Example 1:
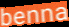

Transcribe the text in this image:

benna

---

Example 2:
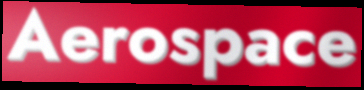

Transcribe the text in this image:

Aerospace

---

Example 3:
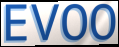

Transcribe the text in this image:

EVOO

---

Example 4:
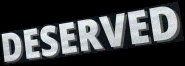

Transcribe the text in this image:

DESERVED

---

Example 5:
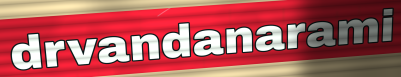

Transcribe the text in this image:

drvandanarami